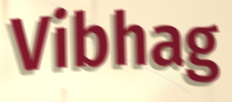
Vibhag